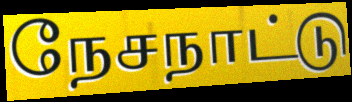
நேசநாட்டு